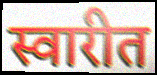
स्वारीत